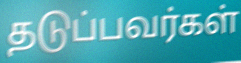
தடுப்பவர்கள்